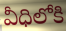
వీధిలోకి